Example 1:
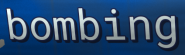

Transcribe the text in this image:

bombing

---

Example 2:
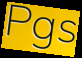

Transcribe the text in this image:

Pgs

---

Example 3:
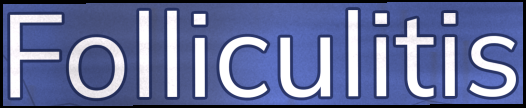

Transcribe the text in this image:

Folliculitis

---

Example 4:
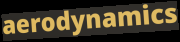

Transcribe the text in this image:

aerodynamics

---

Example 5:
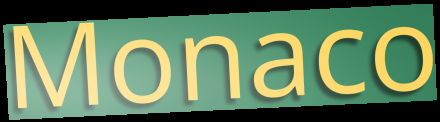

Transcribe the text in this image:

Monaco